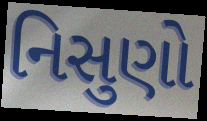
નિસુણો